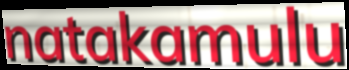
natakamulu